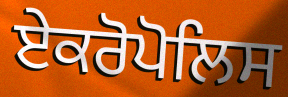
ਏਕਰੋਪੋਲਿਸ